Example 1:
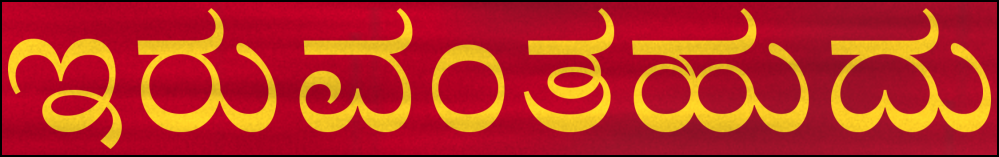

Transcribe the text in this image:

ಇರುವಂತಹುದು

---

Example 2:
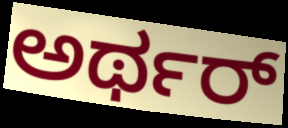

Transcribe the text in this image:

ಅರ್ಥರ್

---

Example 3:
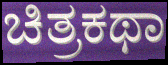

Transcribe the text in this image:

ಚಿತ್ರಕಥಾ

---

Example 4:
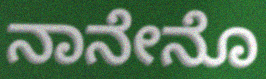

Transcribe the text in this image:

ನಾನೇನೊ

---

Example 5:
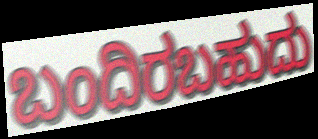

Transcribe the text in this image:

ಬಂದಿರಬಹುದು